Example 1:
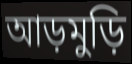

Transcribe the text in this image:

আড়মুড়ি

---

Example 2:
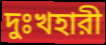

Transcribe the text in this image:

দুঃখহারী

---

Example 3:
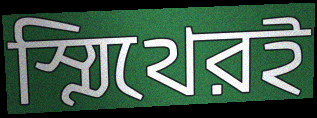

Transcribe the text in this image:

স্মিথেরই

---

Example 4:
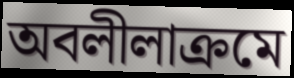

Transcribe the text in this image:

অবলীলাক্রমে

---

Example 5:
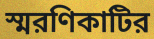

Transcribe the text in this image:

স্মরণিকাটির